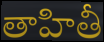
తాహితీ